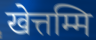
खेत्तम्मि